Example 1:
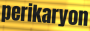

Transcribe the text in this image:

perikaryon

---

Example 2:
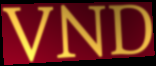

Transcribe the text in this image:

VND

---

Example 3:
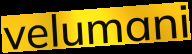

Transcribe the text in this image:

velumani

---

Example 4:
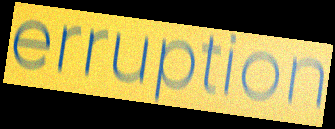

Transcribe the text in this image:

erruption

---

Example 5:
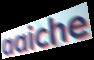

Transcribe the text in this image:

aaiche